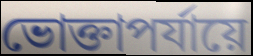
ভোক্তাপর্যায়ে